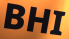
BHI